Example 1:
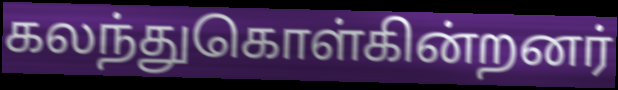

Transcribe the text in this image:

கலந்துகொள்கின்றனர்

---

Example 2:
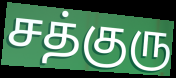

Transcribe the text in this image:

சத்குரு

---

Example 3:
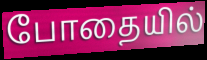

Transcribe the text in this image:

போதையில்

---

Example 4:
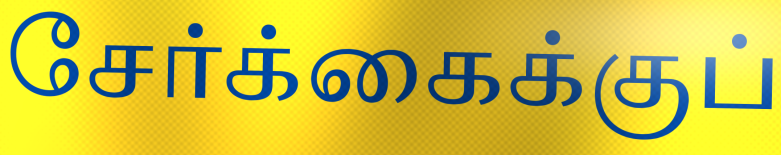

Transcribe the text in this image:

சேர்க்கைக்குப்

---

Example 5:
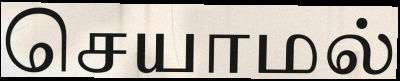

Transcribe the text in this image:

செயாமல்